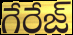
గేరేజ్